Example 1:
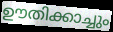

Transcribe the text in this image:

ഊതിക്കാച്ചും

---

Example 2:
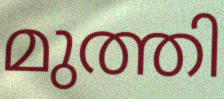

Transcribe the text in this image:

മുത്തി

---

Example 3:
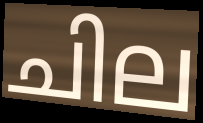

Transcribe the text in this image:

ചില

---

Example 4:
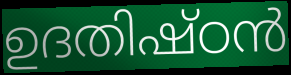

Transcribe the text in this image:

ഉദതിഷ്ഠൻ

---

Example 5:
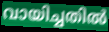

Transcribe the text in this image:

വായിച്ചതിൽ